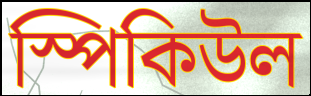
স্পিকিউল